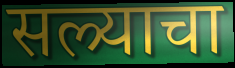
सल्याचा